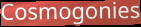
Cosmogonies